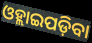
ଓହ୍ଲାଇପଡ଼ିବା